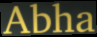
Abha